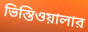
ভিস্তিওয়ালার